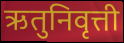
ऋतुनिवृत्ती